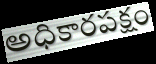
అధికారపక్షం